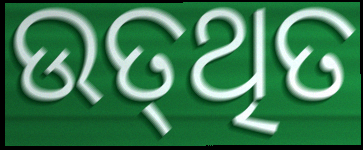
ଉତ୍‍ଥିତ